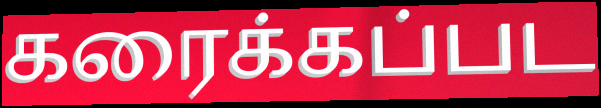
கரைக்கப்பட